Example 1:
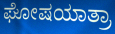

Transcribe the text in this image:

ಘೋಷಯಾತ್ರಾ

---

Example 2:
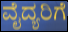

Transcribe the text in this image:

ವೈದ್ಯರಿಗೆ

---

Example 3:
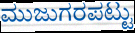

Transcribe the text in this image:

ಮುಜುಗರಪಟ್ಟು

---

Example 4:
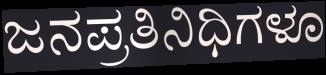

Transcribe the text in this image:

ಜನಪ್ರತಿನಿಧಿಗಳೂ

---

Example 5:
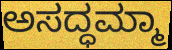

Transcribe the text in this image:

ಅಸದ್ಧಮ್ಮಾ